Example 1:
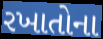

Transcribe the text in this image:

રખાતોના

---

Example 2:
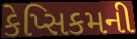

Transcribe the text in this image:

કેપ્સિકમની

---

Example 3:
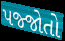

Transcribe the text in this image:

પજ્જોતો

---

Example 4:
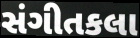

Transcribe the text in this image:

સંગીતકલા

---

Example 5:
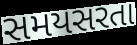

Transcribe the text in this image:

સમયસરતા